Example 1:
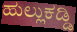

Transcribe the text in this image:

ಹುಲ್ಲುಕಡ್ಡಿ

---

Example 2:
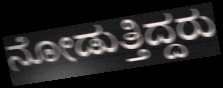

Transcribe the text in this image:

ನೋಡುತ್ತಿದ್ದರು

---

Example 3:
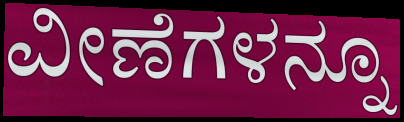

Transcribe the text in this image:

ವೀಣೆಗಳನ್ನೂ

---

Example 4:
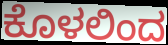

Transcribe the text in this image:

ಕೊಳಲಿಂದ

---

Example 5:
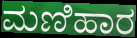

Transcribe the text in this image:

ಮಣಿಹಾರ